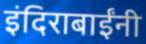
इंदिराबाईंनी